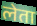
लेता